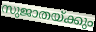
സുജാതയ്ക്കും